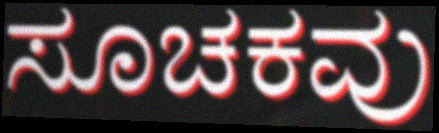
ಸೂಚಕವು